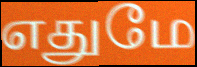
எதுமே